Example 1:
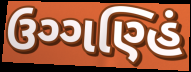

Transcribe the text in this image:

ઉગ્ગણ્હિં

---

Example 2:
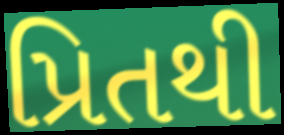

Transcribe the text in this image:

પ્રિતથી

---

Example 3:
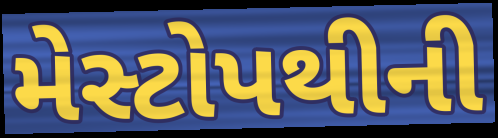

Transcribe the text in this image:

મેસ્ટોપથીની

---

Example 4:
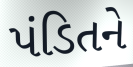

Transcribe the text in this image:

પંડિતને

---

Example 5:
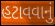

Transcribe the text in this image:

હટાવવાનું